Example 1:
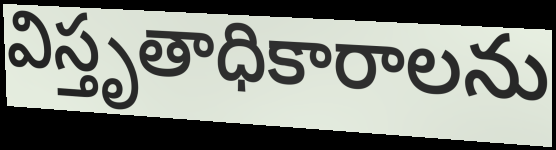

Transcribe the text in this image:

విస్తృతాధికారాలను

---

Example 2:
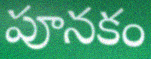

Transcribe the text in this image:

పూనకం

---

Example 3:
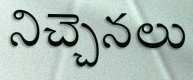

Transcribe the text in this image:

నిచ్చెనలు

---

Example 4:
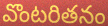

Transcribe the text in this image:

వొంటరితనం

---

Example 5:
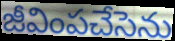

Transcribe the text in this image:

జీవింపచేసెను